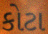
કોટા